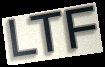
LTF